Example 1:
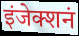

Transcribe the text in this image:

इंजेक्शनं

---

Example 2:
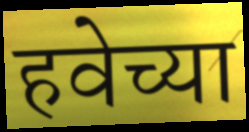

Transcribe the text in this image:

हवेच्या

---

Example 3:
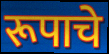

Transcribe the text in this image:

रूपाचे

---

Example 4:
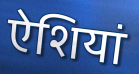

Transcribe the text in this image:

ऐशियां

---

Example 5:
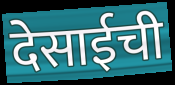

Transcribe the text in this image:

देसाईची